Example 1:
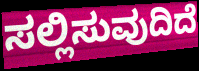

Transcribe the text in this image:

ಸಲ್ಲಿಸುವುದಿದೆ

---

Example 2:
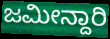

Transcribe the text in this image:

ಜಮೀನ್ದಾರಿ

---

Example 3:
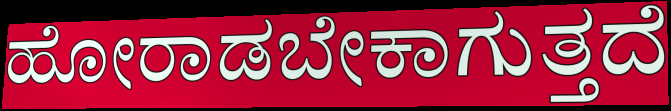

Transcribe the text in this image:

ಹೋರಾಡಬೇಕಾಗುತ್ತದೆ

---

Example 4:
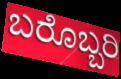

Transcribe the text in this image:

ಬರೊಬ್ಬರಿ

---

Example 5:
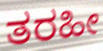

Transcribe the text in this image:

ತರಹೀ